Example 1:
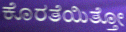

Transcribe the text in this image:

ಕೊರತೆಯಿತ್ತೋ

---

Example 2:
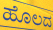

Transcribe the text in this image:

ಹೊಲದ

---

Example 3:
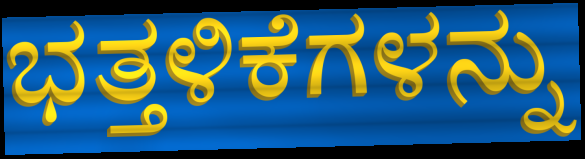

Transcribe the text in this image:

ಭತ್ತಳಿಕೆಗಳನ್ನು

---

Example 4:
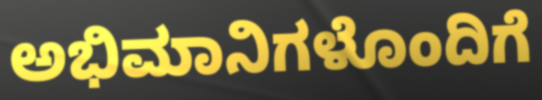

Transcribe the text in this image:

ಅಭಿಮಾನಿಗಳೊಂದಿಗೆ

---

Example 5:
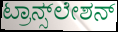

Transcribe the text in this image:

ಟ್ರಾನ್ಸ್‌ಲೇಶನ್